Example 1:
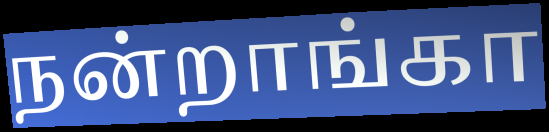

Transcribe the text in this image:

நன்றாங்கா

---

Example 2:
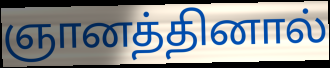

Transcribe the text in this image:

ஞானத்தினால்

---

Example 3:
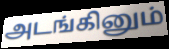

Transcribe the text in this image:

அடங்கினும்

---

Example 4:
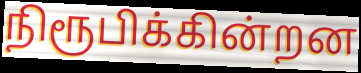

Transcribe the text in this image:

நிரூபிக்கின்றன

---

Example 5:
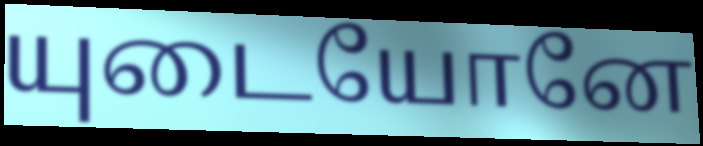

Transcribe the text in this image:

யுடையோனே